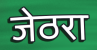
जेठरा